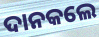
ଦାନକଲେ